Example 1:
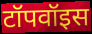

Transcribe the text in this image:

टॉपवॉइस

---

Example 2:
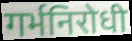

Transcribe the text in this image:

गर्भनिरोधी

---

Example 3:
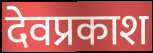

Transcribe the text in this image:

देवप्रकाश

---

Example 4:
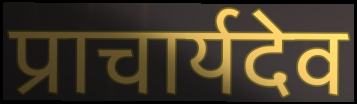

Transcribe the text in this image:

प्राचार्यदेव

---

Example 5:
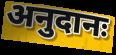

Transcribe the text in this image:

अनुदानः